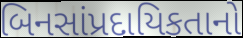
બિનસાંપ્રદાયિકતાનો